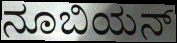
ನೂಬಿಯನ್